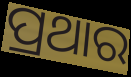
ପ୍ରଥାର